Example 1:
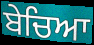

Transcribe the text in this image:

ਬੇਚਿਆ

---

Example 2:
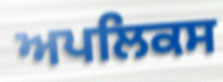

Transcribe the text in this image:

ਅਪਲਿਕਸ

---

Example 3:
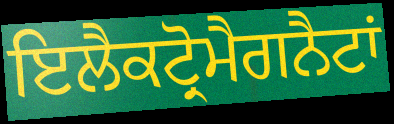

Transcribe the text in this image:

ਇਲੈਕਟ੍ਰੋਮੈਗਨੈਟਾਂ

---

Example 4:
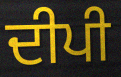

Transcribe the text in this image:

ਦੀਪੀ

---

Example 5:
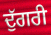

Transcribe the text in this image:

ਦੁੱਗਰੀ